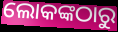
ଲୋକଙ୍କଠାରୁ